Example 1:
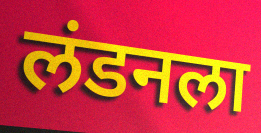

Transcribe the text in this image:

लंडनला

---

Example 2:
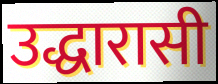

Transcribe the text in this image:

उद्धारासी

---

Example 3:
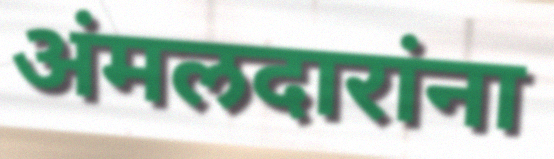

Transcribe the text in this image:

अंमलदारांना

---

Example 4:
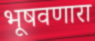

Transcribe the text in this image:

भूषवणारा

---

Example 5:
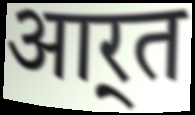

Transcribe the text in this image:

आर्त